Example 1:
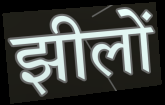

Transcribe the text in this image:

झीलों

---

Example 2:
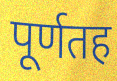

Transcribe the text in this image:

पूर्णतह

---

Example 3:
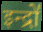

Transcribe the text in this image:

इन्द्रो॑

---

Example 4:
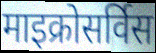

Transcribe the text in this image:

माइक्रोसर्विस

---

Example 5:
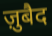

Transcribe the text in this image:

ज़ुबैद